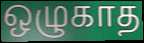
ஒழுகாத